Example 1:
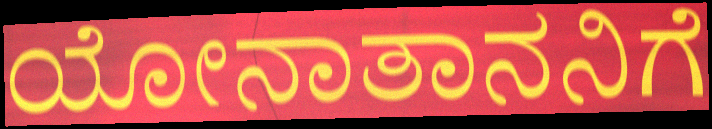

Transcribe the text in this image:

ಯೋನಾತಾನನಿಗೆ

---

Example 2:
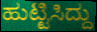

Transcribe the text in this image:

ಹುಟ್ಟಿಸಿದ್ದು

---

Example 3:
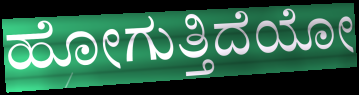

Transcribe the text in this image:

ಹೋಗುತ್ತಿದೆಯೋ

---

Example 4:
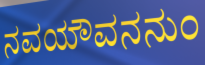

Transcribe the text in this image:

ನವಯೌವನನುಂ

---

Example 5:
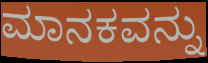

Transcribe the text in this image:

ಮಾನಕವನ್ನು